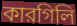
কারগিলি